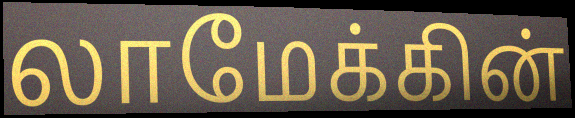
லாமேக்கின்